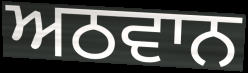
ਅਠਵਾਨ